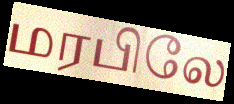
மரபிலே